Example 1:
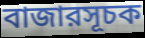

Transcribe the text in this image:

বাজারসূচক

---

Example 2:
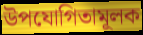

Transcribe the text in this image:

উপযোগিতামূলক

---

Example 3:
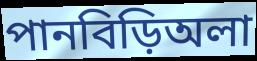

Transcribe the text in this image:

পানবিড়িঅলা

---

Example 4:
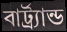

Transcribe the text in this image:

বার্ট্র্যান্ড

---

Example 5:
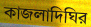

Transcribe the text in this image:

কাজলাদিঘির